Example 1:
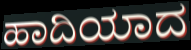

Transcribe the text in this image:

ಹಾದಿಯಾದ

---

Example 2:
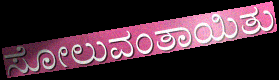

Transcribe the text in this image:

ಸೋಲುವಂತಾಯಿತು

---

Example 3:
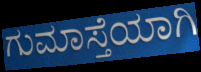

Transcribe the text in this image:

ಗುಮಾಸ್ತೆಯಾಗಿ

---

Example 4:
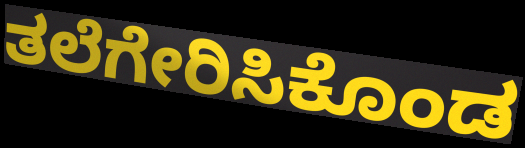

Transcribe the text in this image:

ತಲೆಗೇರಿಸಿಕೊಂಡ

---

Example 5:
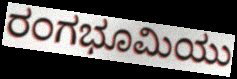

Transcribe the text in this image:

ರಂಗಭೂಮಿಯು